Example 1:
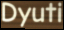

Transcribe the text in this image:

Dyuti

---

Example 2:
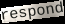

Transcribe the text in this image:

respond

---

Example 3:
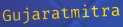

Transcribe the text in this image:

Gujaratmitra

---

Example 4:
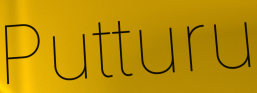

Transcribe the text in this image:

Putturu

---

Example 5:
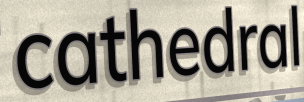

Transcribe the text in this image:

cathedral